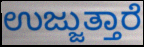
ಉಜ್ಜುತ್ತಾರೆ